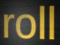
roll